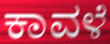
ಕಾವಳೆ